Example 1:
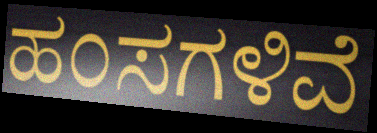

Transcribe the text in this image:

ಹಂಸಗಳಿವೆ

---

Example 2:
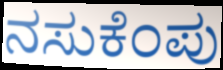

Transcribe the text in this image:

ನಸುಕೆಂಪು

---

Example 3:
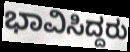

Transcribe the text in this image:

ಭಾವಿಸಿದ್ದರು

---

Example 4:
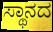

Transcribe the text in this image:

ಸ್ಥಾನದ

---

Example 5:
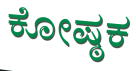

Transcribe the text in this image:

ಕೋಷ್ಠಕ